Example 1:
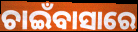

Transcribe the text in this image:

ଚାଇଁବାସାରେ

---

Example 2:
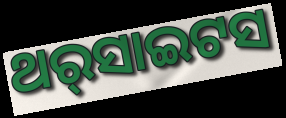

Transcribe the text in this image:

ଥର୍‌ସାଇଟସ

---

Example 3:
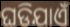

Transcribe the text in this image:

ଘଡିଯାଏଁ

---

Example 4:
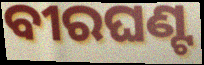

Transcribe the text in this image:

ବୀରଘଣ୍ଟ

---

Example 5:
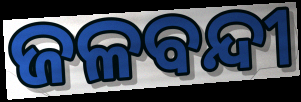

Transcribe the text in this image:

ଜଳବନ୍ଦୀ